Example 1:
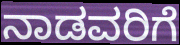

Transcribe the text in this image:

ನಾಡವರಿಗೆ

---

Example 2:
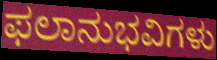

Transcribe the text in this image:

ಫಲಾನುಭವಿಗಳು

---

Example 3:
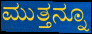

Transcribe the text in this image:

ಮುತ್ತನ್ನೂ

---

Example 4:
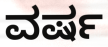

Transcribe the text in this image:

ವರ್ಷ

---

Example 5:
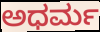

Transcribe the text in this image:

ಅಧರ್ಮ